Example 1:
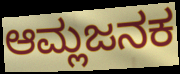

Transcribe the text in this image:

ಆಮ್ಲಜನಕ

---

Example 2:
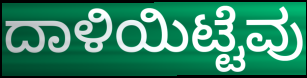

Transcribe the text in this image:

ದಾಳಿಯಿಟ್ಟೆವು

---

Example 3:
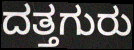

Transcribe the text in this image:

ದತ್ತಗುರು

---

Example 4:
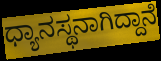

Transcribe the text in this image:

ಧ್ಯಾನಸ್ಥನಾಗಿದ್ದಾನೆ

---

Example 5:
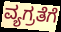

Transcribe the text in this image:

ವ್ಯಗ್ರತೆಗೆ